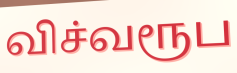
விச்வரூப